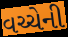
વચ્ચેની